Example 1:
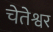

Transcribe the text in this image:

चेतेश्वर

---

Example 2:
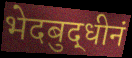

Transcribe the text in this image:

भेदबुद्धीनं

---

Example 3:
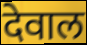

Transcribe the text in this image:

देवाल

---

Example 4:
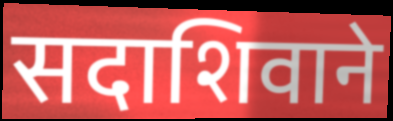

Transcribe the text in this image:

सदाशिवाने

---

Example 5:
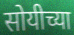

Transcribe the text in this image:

सोयीच्या